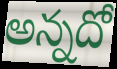
అన్నదో